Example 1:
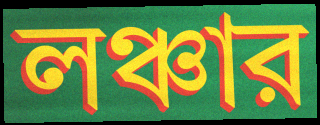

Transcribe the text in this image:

লঞ্চার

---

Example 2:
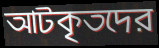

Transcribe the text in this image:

আটকৃতদের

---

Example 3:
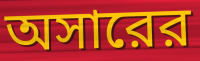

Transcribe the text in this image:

অসারের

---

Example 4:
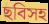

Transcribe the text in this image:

ছবিসহ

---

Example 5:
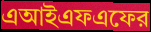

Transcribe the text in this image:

এআইএফএফের